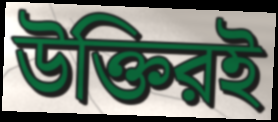
উক্তিরই